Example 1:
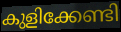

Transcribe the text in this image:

കുളിക്കേണ്ടി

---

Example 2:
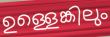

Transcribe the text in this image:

ഉള്ളെങ്കിലും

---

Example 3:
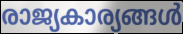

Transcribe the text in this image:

രാജ്യകാര്യങ്ങൾ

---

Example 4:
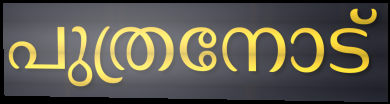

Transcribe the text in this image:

പുത്രനോട്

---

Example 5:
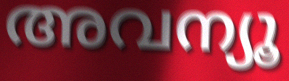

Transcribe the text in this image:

അവന്യൂ